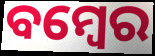
ବମ୍ୱେର